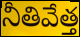
నీతివేత్త